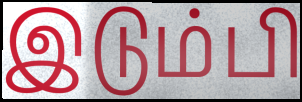
இடும்பி